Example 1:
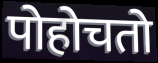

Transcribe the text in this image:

पोहोचतो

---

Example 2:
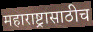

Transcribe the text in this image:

महाराष्ट्रासाठीच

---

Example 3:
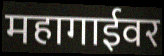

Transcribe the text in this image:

महागाईवर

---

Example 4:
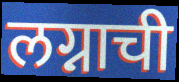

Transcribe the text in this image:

लग्नाची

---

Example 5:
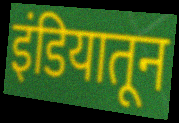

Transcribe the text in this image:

इंडियातून